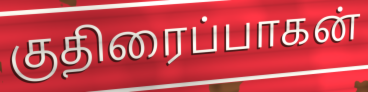
குதிரைப்பாகன்